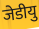
जेडीयु